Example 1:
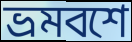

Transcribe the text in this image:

ভ্রমবশে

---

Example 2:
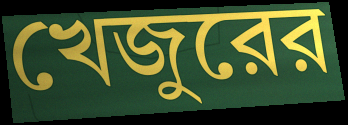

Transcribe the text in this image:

খেজুরের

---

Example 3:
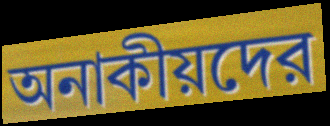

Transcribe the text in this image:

অনাকীয়দের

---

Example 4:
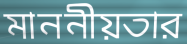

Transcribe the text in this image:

মাননীয়তার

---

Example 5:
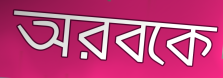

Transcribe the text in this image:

অরবকে